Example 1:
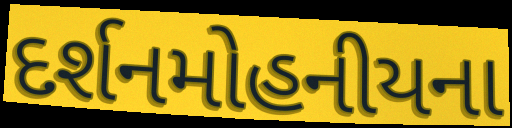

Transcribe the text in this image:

દર્શનમોહનીયના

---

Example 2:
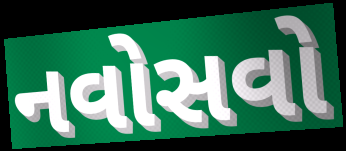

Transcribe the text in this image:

નવોસવો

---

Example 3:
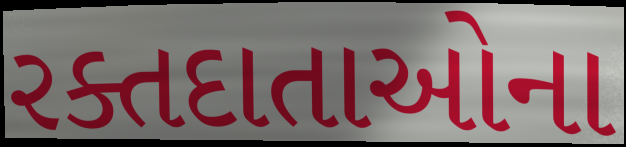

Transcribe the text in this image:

રક્તદાતાઓના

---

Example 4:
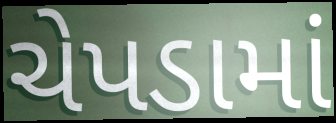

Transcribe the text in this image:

ચેપડામાં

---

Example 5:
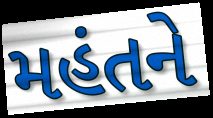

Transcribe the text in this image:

મહંતને